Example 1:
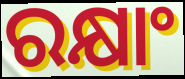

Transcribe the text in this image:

ରକ୍ଷାଂ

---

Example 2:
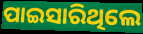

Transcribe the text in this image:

ପାଇସାରିଥିଲେ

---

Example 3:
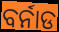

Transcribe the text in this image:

ବର୍ନାଡ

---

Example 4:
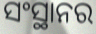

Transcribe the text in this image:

ସଂସ୍ଥାନର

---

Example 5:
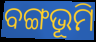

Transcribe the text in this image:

ବଙ୍ଗଭୂମି